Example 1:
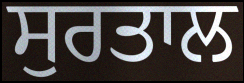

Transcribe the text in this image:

ਸੁਰਤਾਲ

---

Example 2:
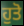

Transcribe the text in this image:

ਹੁਤੋ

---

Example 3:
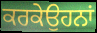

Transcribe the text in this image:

ਕਰਕੇਉਹਨਾਂ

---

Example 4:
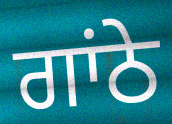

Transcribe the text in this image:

ਗਾਂਠੇ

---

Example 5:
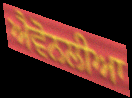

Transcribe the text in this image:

ਐਵੋਨਲੀਆ